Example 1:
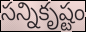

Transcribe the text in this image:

సన్నికృష్టం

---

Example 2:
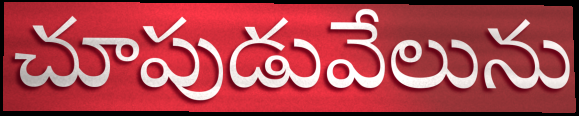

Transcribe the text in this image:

చూపుడువేలును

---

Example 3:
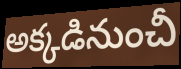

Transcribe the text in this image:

అక్కడినుంచీ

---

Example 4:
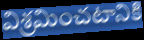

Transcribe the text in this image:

విశ్రమించటానికి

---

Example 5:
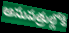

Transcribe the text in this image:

ఆసుపత్రుల్లోకి